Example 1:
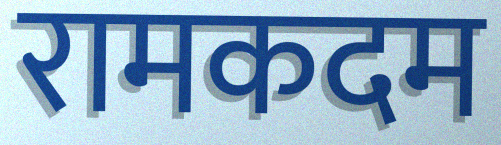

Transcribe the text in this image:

रामकदम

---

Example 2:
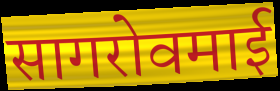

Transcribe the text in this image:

सागरोवमाई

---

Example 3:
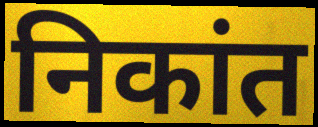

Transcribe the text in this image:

निकांत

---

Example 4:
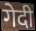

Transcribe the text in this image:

गेदी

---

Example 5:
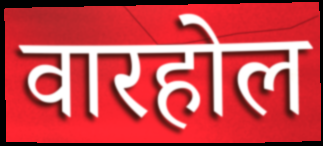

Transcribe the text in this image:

वारहोल